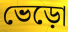
ভেড়ো